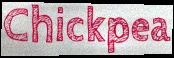
Chickpea